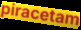
piracetam